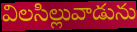
విలసిల్లువాడును